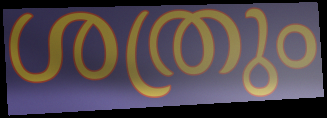
ശത്രും